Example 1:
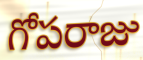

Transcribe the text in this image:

గోపరాజు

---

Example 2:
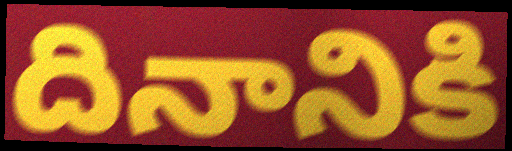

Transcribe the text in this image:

దినానికి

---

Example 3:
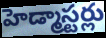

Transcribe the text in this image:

హెడ్మాస్టర్లు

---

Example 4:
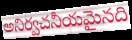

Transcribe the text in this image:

అనిర్వచనీయమైనది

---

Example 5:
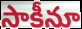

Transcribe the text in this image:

సాకీనూ